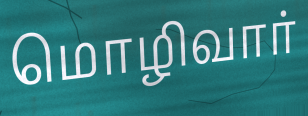
மொழிவார்